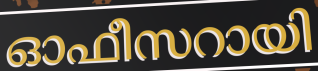
ഓഫീസറായി